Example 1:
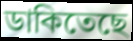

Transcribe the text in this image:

ডাকিতেছে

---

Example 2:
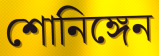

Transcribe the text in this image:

শোনিঙ্গেন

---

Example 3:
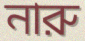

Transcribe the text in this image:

নারু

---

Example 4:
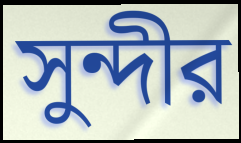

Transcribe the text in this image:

সুন্দীর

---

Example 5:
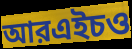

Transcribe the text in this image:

আরএইচও